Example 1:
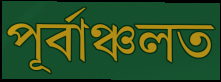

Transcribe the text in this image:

পূৰ্বাঞ্চলত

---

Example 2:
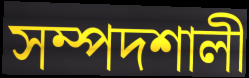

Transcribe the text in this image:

সম্পদশালী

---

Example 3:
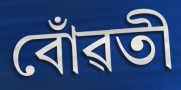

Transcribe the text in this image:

বোঁৱতী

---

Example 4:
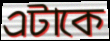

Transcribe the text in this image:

এটাকে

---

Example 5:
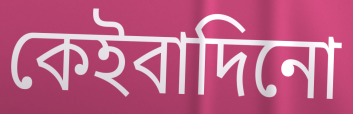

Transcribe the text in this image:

কেইবাদিনো